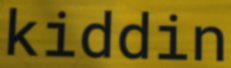
kiddin